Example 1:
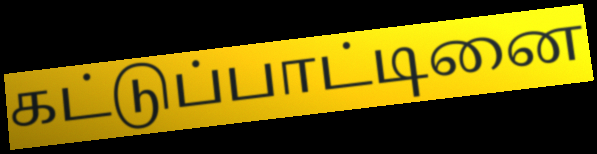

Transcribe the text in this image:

கட்டுப்பாட்டினை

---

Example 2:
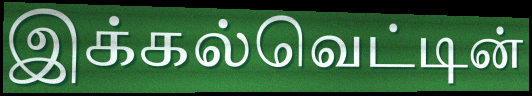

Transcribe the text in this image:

இக்கல்வெட்டின்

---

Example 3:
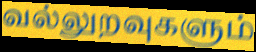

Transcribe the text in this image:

வல்லுறவுகளும்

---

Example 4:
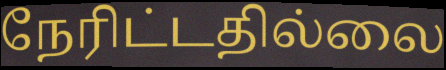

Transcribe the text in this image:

நேரிட்டதில்லை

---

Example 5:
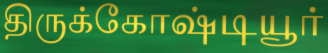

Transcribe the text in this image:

திருக்கோஷ்டியூர்